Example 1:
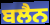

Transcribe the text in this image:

ਬਲੈਨ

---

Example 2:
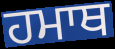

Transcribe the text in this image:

ਹਮਾਥ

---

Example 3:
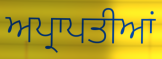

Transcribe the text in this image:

ਅਪ੍ਰਾਪਤੀਆਂ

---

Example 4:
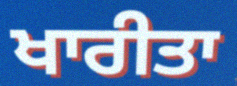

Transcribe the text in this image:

ਖਾਰੀਤਾ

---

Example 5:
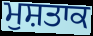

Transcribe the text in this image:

ਮੁਸ਼ਤਾਕ